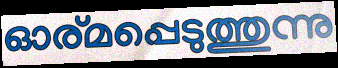
ഓര്മപ്പെടുത്തുന്നു